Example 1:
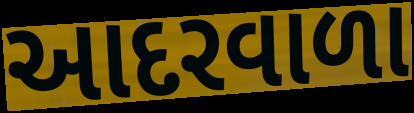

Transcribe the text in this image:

આદરવાળા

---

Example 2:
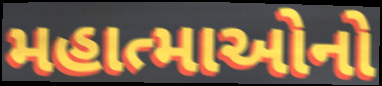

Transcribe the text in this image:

મહાત્માઓનો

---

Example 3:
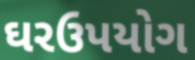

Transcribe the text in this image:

ઘરઉપયોગ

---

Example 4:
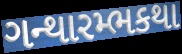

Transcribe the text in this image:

ગન્થારમ્ભકથા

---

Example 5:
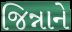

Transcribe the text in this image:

જિન્નાને